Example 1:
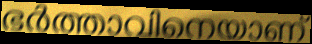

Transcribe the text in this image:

ഭർത്താവിനെയാണ്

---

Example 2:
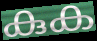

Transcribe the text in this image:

കുക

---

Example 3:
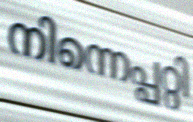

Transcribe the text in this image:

നിന്നെപ്പറ്റി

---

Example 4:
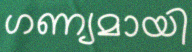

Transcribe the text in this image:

ഗണ്യമായി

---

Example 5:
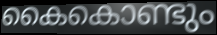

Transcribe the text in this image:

കൈകൊണ്ടും